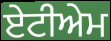
ਏਟੀਅੇਮ